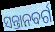
ସନ୍ତାନବର୍ଗ